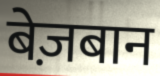
बेज़बान